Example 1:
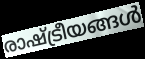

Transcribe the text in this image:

രാഷ്ട്രീയങ്ങൾ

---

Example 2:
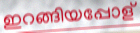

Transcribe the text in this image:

ഇറങ്ങിയപ്പോള്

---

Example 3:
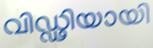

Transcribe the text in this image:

വിഡ്ഢിയായി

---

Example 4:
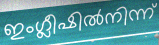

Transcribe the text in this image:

ഇംഗ്ലീഷിൽനിന്ന്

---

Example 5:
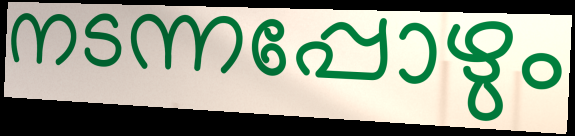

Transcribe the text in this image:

നടന്നപ്പോഴും